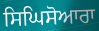
ਸਿਘਿਸੋਆਰਾ